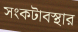
সংকটাবস্থার